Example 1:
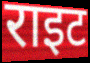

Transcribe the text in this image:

राइट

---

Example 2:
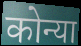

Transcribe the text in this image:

कोन्या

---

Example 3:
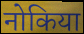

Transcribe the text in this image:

नोकिया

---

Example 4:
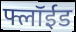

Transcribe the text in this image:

फ्लॉईड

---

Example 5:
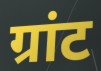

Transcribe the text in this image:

ग्रांट